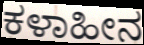
ಕಳಾಹೀನ